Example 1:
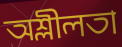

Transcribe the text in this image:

অশ্লীলতা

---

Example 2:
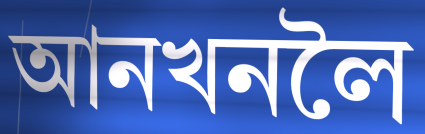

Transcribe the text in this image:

আনখনলৈ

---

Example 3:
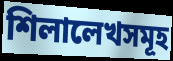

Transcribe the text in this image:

শিলালেখসমূহ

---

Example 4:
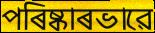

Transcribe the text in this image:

পৰিষ্কাৰভাৱে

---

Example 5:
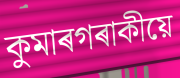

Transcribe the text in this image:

কুমাৰগৰাকীয়ে